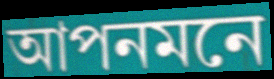
আপনমনে